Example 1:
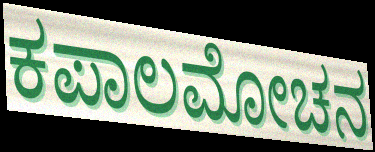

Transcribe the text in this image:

ಕಪಾಲಮೋಚನ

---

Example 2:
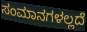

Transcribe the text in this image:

ಸಂಮಾನಗಳಲ್ಲದೆ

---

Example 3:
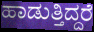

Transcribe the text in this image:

ಹಾಡುತ್ತಿದ್ದರೆ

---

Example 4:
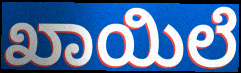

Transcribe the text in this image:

ಖಾಯಿಲೆ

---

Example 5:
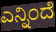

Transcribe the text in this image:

ಎನ್ನಿಂದೆ